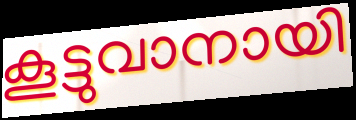
കൂട്ടുവാനായി